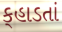
ક્‌હાડતાં